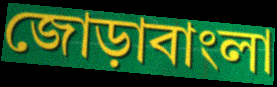
জোড়াবাংলা